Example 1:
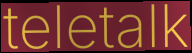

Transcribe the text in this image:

teletalk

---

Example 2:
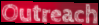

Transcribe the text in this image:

Outreach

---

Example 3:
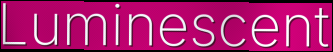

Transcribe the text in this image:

Luminescent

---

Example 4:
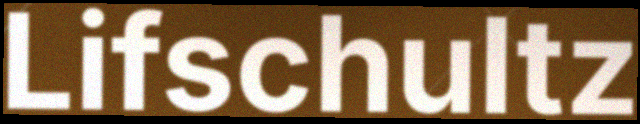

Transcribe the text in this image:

Lifschultz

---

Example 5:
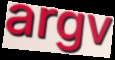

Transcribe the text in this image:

argv